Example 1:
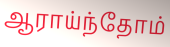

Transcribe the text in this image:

ஆராய்ந்தோம்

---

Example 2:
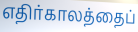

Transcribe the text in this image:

எதிர்காலத்தைப்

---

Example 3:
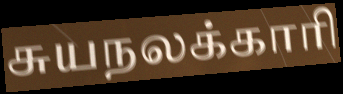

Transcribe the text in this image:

சுயநலக்காரி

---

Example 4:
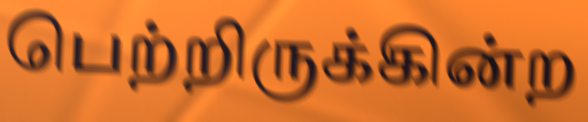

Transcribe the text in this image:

பெற்றிருக்கின்ற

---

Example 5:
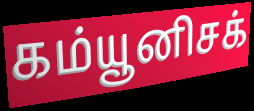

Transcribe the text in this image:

கம்யூனிசக்